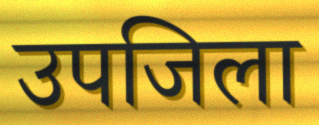
उपजिला